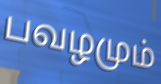
பவழமும்